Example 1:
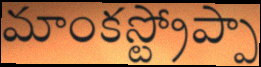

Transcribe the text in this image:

మాంకస్ట్రోప్పా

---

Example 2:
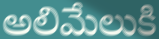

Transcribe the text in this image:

అలిమేలుకి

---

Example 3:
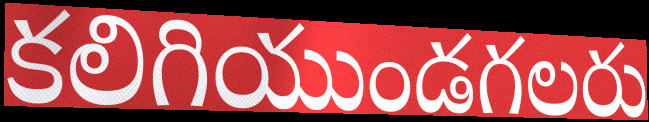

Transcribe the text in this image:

కలిగియుండగలరు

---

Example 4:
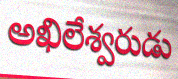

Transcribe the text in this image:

అఖిలేశ్వరుడు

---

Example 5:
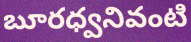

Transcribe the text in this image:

బూరధ్వనివంటి